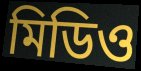
মিডিও